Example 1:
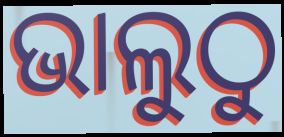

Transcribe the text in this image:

ଭାଲୁଠୁ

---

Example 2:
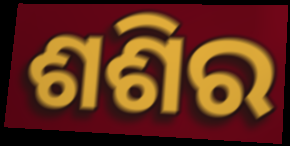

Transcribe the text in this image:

ଶଶିର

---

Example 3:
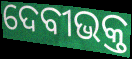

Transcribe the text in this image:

ଦେବୀଭକ୍ତ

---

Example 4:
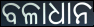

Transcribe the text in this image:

ବଳାଧାନ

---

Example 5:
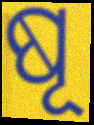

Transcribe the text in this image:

ଷୂ